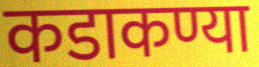
कडाकण्या